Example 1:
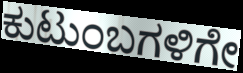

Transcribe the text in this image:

ಕುಟುಂಬಗಳಿಗೇ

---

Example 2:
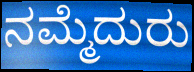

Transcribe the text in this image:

ನಮ್ಮೆದುರು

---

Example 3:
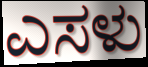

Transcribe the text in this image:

ಎಸಳು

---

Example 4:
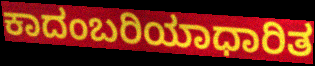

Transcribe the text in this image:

ಕಾದಂಬರಿಯಾಧಾರಿತ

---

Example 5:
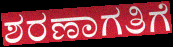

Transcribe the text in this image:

ಶರಣಾಗತಿಗೆ